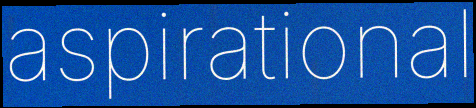
aspirational